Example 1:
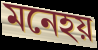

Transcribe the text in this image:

মনেহয়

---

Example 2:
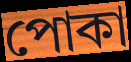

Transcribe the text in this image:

পোকা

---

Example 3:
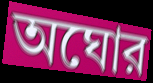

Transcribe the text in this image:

অঘোর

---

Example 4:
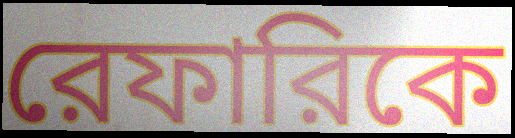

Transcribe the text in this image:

রেফারিকে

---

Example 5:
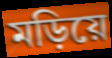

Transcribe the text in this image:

মড়িয়ে